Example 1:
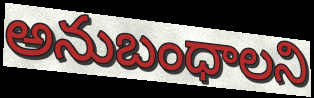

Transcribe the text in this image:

అనుబంధాలని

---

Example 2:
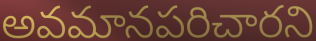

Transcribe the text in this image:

అవమానపరిచారని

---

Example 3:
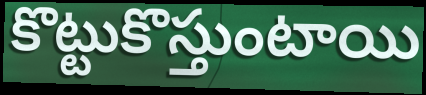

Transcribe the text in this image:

కొట్టుకొస్తుంటాయి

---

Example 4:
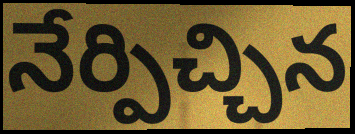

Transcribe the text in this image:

నేర్పిచ్చిన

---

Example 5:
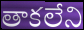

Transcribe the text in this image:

తాకలేని